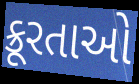
ક્રૂરતાઓ